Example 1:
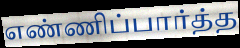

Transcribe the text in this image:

எண்ணிப்பார்த்த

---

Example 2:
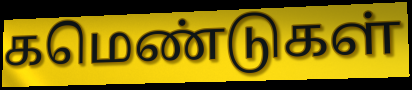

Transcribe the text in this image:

கமெண்டுகள்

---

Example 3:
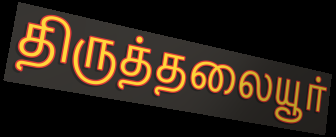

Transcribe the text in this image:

திருத்தலையூர்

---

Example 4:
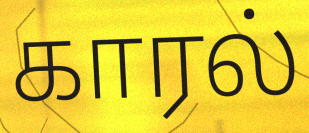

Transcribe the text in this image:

காரல்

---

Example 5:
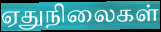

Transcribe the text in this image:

ஏதுநிலைகள்